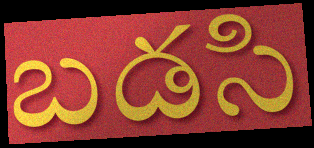
బడసి